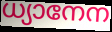
ധ്യാനേന